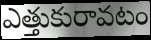
ఎత్తుకురావటం